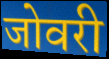
जोवरी